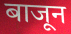
बाजून